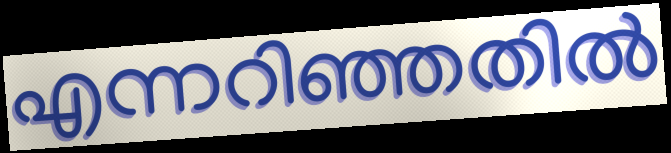
എന്നറിഞ്ഞതിൽ